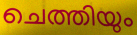
ചെത്തിയും